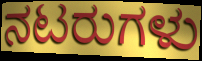
ನಟರುಗಳು